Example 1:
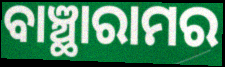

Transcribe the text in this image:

ବାଞ୍ଛାରାମର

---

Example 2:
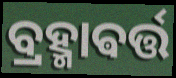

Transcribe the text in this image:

ବ୍ରହ୍ମାଵର୍ତ୍ତ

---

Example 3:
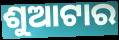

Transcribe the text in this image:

ଶୁଆଟାର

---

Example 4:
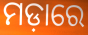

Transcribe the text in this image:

ମଡ଼ାରେ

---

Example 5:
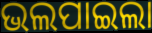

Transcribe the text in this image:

ଭଲପାଇଲା